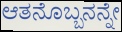
ಆತನೊಬ್ಬನನ್ನೇ